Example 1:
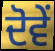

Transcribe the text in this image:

ਦੋਵੇੰ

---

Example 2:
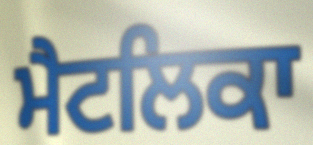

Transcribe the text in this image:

ਮੈਟਲਿਕਾ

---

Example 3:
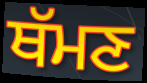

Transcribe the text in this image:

ਥੱਮਣ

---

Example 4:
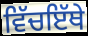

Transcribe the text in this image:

ਵਿੱਚਇੱਥੇ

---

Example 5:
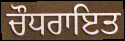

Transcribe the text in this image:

ਚੌਧਰਾਇਤ